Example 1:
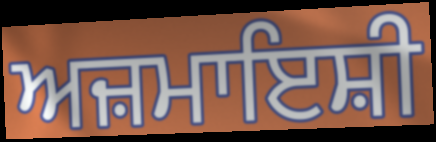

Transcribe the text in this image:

ਅਜ਼ਮਾਇਸ਼ੀ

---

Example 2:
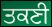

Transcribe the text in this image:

ਤਕਣੀ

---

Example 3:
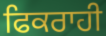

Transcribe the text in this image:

ਫਿਕਰਾਹੀ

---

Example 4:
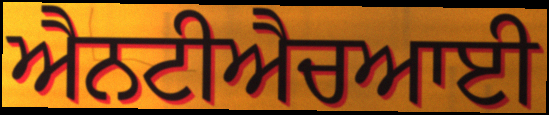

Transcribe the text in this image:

ਐਨਟੀਐਚਆਈ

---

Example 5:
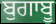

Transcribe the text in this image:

ਬੁਗਾਬੂ